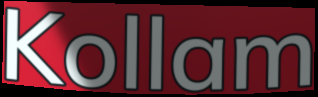
Kollam